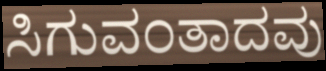
ಸಿಗುವಂತಾದವು